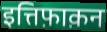
इत्तिफ़ाक़न